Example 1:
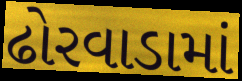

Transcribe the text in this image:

ઢોરવાડામાં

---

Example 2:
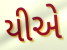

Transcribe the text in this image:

યીએ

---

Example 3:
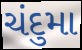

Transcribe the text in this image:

ચંદુમા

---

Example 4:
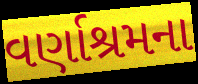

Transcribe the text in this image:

વર્ણાશ્રમના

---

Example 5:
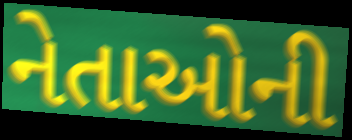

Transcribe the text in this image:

નેતાઓની